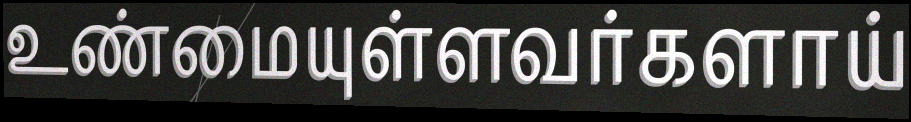
உண்மையுள்ளவர்களாய்